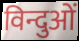
विन्दुओं